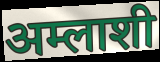
अम्लाशी